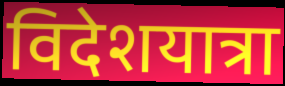
विदेशयात्रा